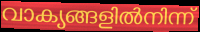
വാക്യങ്ങളിൽനിന്ന്